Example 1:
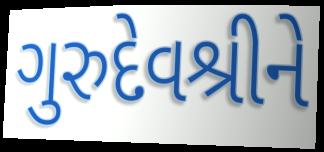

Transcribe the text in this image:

ગુરુદેવશ્રીને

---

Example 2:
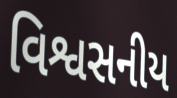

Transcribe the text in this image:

વિશ્વસનીય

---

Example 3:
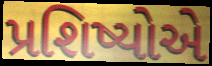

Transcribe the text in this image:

પ્રશિષ્યોએ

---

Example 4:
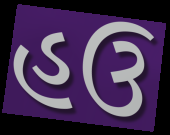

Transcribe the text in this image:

હઉ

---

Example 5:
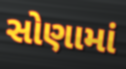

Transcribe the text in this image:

સોણામાં